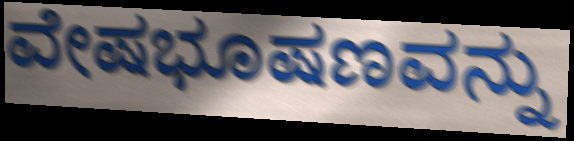
ವೇಷಭೂಷಣವನ್ನು